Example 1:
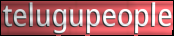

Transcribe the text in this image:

telugupeople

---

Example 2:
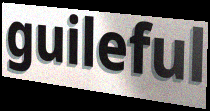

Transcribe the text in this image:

guileful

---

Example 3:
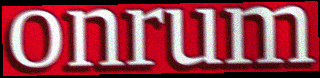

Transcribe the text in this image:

onrum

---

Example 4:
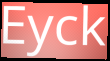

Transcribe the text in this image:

Eyck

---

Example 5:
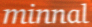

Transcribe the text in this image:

minnal